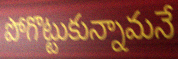
పోగొట్టుకున్నామనే